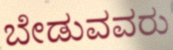
ಬೇಡುವವರು